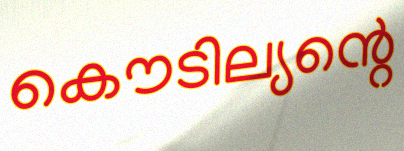
കൌടില്യന്റെ